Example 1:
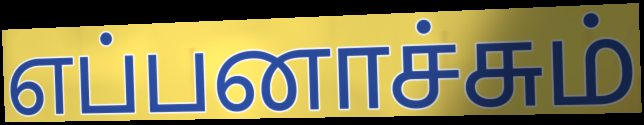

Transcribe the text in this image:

எப்பனாச்சும்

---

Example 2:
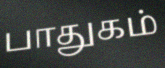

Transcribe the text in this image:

பாதுகம்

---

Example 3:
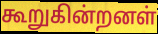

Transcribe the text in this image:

கூறுகின்றனள்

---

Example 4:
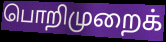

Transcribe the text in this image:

பொறிமுறைக்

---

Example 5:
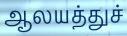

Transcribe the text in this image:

ஆலயத்துச்